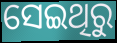
ସେଇଥିରୁ